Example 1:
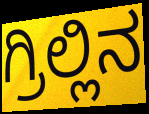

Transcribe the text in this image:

ಗ್ರಿಲ್ಲಿನ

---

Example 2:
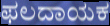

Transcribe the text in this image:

ಫಲದಾಯಕ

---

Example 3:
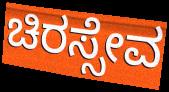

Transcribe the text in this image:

ಚಿರಸ್ಸೇವ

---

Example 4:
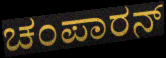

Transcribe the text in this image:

ಚಂಪಾರನ್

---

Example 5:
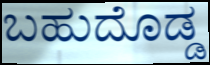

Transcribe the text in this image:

ಬಹುದೊಡ್ಡ